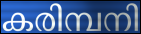
കരിമ്പനി